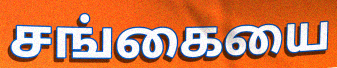
சங்கையை